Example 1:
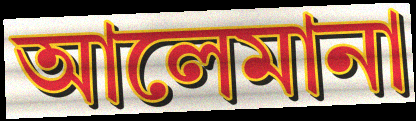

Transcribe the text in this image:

আলেমানা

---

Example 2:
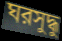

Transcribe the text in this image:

ঘরসুদ্ধু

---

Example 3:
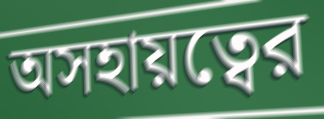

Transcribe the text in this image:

অসহায়ত্বের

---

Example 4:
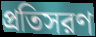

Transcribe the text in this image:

প্রতিসরণ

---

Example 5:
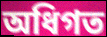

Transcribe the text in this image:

অধিগত